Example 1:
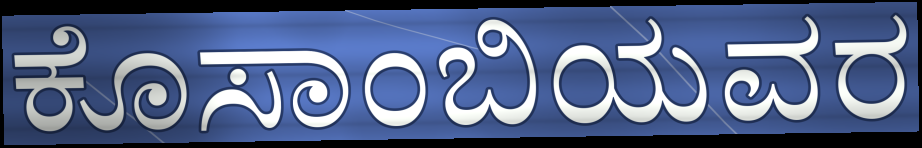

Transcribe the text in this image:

ಕೊಸಾಂಬಿಯವರ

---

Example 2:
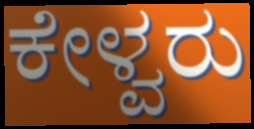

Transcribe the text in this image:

ಕೇಳ್ವರು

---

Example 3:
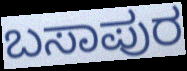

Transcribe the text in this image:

ಬಸಾಪುರ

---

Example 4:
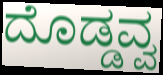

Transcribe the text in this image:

ದೊಡ್ಡವ್ವ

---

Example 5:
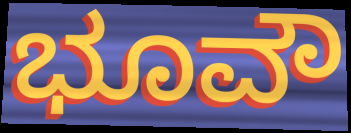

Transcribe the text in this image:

ಭೂವೌ